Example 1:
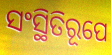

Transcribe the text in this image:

ସଂସ୍ଥିତିରୂପେ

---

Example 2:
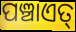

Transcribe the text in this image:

ପଞ୍ଚାଏତ୍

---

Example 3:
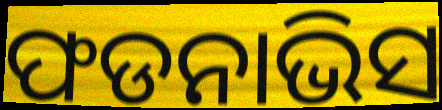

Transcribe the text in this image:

ଫଡନାଭିସ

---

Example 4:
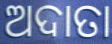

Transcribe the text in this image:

ଅଦାତା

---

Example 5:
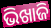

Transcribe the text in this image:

ଭିଖାଜି